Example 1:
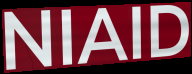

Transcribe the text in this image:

NIAID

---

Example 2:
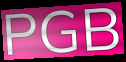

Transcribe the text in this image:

PGB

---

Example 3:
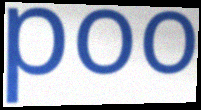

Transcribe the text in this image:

poo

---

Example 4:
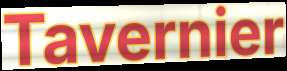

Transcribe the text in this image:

Tavernier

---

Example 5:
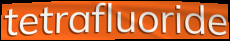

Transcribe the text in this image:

tetrafluoride